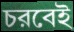
চরবেই